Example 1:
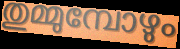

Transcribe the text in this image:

തുമ്മുമ്പോഴും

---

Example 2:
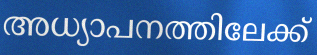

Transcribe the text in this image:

അധ്യാപനത്തിലേക്ക്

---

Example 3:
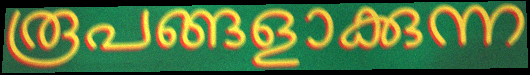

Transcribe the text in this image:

രൂപങ്ങളാക്കുന്ന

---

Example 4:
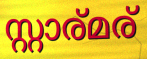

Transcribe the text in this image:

സ്റ്റാര്മര്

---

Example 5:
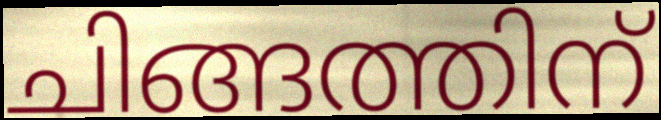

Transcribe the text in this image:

ചിങ്ങത്തിന്